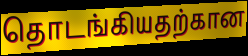
தொடங்கியதற்கான